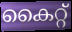
കൈറ്റ്